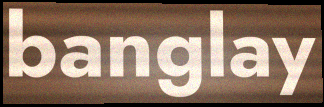
banglay